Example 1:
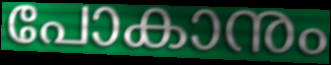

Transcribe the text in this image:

പോകാനും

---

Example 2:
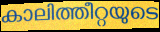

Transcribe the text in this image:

കാലിത്തീറ്റയുടെ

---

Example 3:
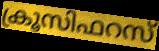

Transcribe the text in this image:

ക്രൂസിഫറസ്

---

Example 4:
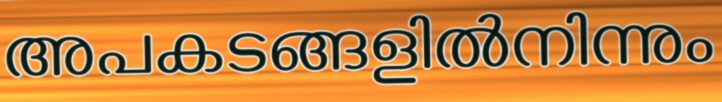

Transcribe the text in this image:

അപകടങ്ങളിൽനിന്നും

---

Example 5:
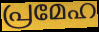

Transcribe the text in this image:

പ്രമേഹ